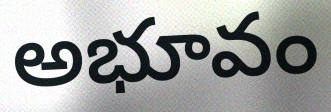
అభూవం